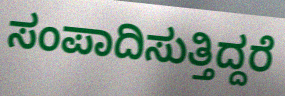
ಸಂಪಾದಿಸುತ್ತಿದ್ದರೆ